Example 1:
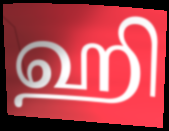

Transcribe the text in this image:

ஹி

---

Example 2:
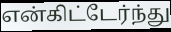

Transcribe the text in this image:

என்கிட்டேர்ந்து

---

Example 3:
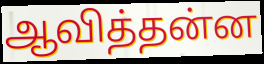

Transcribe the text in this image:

ஆவித்தன்ன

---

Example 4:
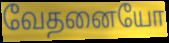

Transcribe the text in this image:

வேதனையோ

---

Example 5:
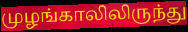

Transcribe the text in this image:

முழங்காலிலிருந்து